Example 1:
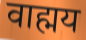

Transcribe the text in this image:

वाह्मय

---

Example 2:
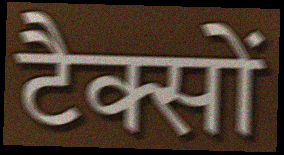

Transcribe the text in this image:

टैक्सों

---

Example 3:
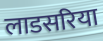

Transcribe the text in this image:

लाडसरिया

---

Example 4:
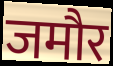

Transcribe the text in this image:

जमौर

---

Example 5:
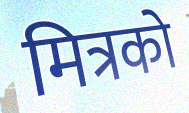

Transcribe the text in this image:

मित्रको